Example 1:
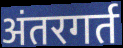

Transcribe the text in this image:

अंतरगर्त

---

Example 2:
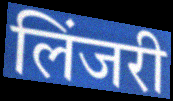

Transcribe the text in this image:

लिंजरी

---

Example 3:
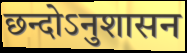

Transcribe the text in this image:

छन्दोऽनुशासन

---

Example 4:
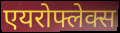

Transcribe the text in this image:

एयरोफ्लेक्स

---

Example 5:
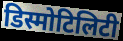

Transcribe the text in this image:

डिस्मोटिलिटी